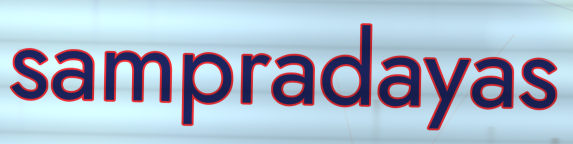
sampradayas